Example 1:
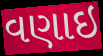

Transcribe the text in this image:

વણાઇ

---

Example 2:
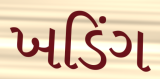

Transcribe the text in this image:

ખડિંગ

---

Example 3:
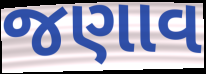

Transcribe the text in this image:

જણાવ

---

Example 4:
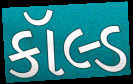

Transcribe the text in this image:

કૉલ્ડ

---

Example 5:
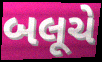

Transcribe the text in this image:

બલૂચે